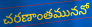
చరణాంతముననో